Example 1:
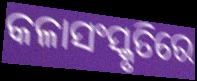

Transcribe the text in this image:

କଳାସଂସ୍କୃତିରେ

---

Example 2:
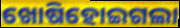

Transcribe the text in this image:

ଖୋଷିହୋଇଗଲା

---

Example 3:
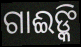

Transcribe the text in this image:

ଗାଈଙ୍କି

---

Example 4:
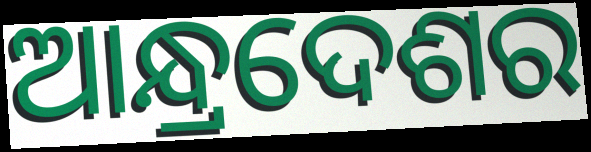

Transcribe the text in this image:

ଆନ୍ଧ୍ରଦେଶର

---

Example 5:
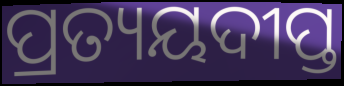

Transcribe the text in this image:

ପ୍ରତ୍ୟୟଦୀପ୍ତ